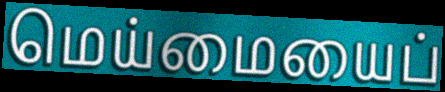
மெய்மையைப்